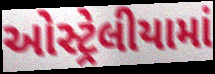
ઓસ્ટ્રેલીયામાં